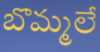
బొమ్మలే